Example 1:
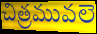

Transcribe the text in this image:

చిత్రమువలె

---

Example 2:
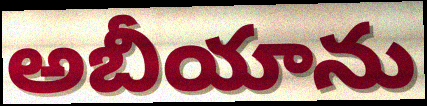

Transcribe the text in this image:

అబీయాను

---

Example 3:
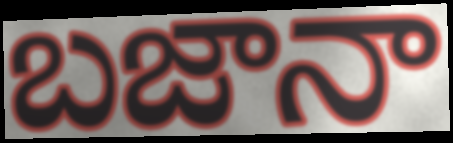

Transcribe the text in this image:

బజానా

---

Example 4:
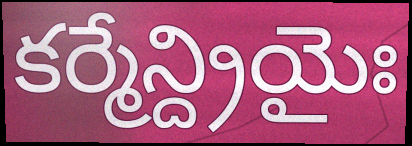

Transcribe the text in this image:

కర్మేన్ద్రియైః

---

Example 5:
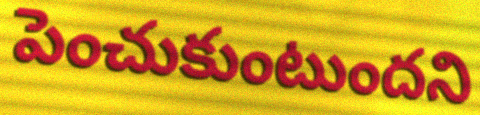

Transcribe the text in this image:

పెంచుకుంటుందని